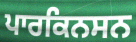
ਪਾਰਕਿਨਸਨ